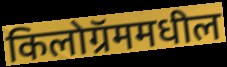
किलोग्रॅममधील